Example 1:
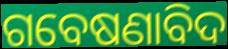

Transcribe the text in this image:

ଗବେଷଣାବିଦ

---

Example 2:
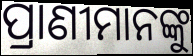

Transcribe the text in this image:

ପ୍ରାଣୀମାନଙ୍କୁ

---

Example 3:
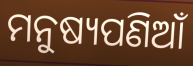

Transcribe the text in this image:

ମନୁଷ୍ୟପଣିଆଁ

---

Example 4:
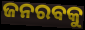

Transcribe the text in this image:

ଜନରବକୁ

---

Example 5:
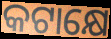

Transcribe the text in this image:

କଟାକ୍ଷେ